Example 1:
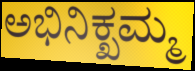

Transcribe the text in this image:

ಅಭಿನಿಕ್ಖಮ್ಮ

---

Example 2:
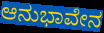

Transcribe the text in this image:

ಆನುಭಾವೇನ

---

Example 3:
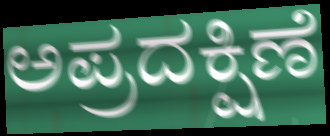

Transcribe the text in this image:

ಅಪ್ರದಕ್ಷಿಣೆ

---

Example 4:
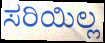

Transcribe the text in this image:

ಸರಿಯಿಲ್ಲ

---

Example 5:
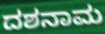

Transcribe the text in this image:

ದಶನಾಮ